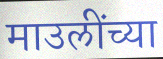
माउलींच्या